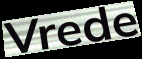
Vrede